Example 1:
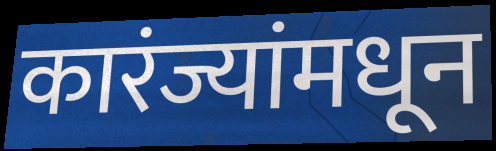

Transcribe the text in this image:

कारंज्यांमधून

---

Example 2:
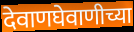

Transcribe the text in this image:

देवाणघेवाणीच्या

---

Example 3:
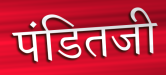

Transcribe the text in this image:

पंडितजी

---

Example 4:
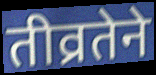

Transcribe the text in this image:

तीव्रतेने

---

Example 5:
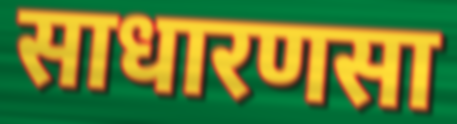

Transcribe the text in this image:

साधारणसा